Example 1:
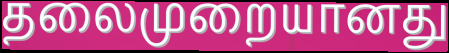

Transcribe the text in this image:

தலைமுறையானது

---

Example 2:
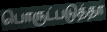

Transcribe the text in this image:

பொருட்படுத்தா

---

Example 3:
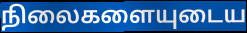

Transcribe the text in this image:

நிலைகளையுடைய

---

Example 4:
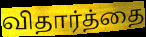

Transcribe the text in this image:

விதார்த்தை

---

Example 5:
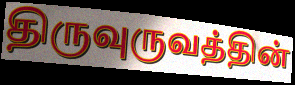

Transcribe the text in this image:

திருவுருவத்தின்